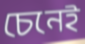
চেনেই